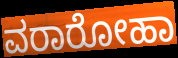
ವರಾರೋಹಾ